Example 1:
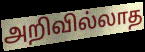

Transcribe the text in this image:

அறிவில்லாத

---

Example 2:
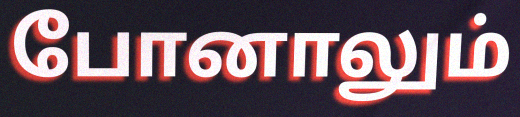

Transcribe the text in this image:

போனாலும்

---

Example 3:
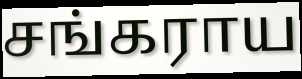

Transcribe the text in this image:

சங்கராய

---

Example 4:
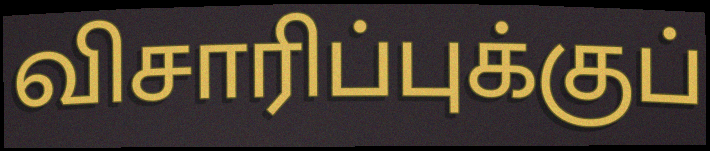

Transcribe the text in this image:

விசாரிப்புக்குப்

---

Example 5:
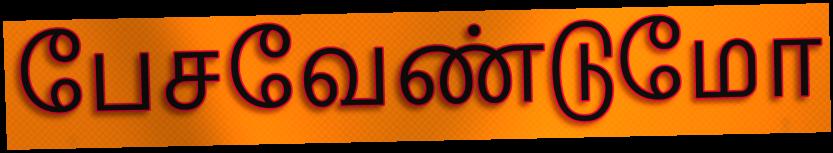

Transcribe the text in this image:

பேசவேண்டுமோ